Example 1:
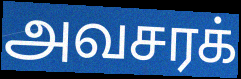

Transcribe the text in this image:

அவசரக்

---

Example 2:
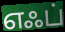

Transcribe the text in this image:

எஃப்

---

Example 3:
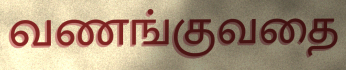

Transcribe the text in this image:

வணங்குவதை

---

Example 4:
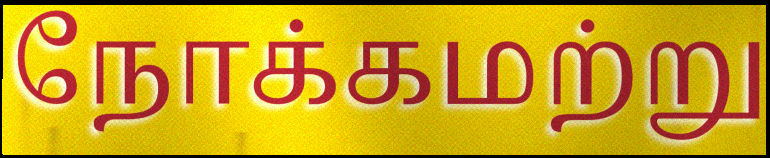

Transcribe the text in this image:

நோக்கமற்று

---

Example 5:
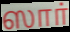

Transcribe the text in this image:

ஸார்